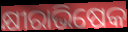
କ୍ଷୀରାଭିଷେକ